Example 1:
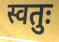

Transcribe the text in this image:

स्वतुः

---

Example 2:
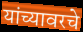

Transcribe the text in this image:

यांच्यावरचे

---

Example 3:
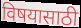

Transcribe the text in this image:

विषयासाठी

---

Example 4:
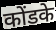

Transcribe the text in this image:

कोंडके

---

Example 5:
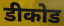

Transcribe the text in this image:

डीकोड